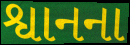
શ્વાનના